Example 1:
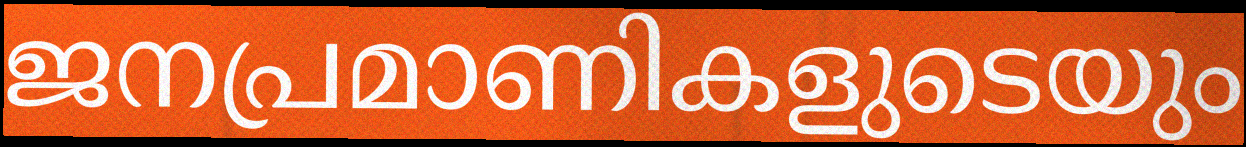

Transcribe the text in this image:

ജനപ്രമാണികളുടെയും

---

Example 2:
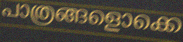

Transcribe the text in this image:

പാത്രങ്ങളൊക്കെ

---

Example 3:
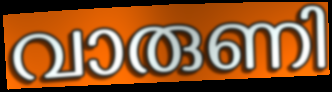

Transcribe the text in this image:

വാരുണി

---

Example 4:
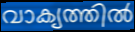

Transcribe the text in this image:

വാക്യത്തിൽ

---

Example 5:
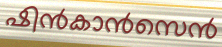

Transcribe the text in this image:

ഷിൻകാൻസെൻ